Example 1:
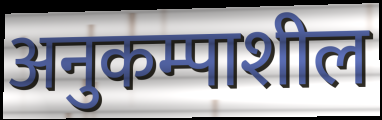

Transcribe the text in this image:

अनुकम्पाशील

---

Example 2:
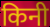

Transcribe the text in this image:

किनी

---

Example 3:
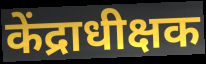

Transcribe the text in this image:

केंद्राधीक्षक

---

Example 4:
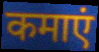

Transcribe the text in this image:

कमाएं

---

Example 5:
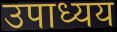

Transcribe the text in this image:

उपाध्यय